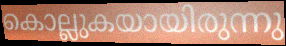
കൊല്ലുകയായിരുന്നു